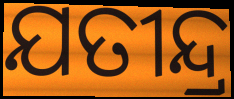
ଯତୀନ୍ଦ୍ର